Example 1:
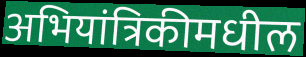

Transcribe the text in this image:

अभियांत्रिकीमधील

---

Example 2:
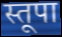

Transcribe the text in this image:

स्तूपा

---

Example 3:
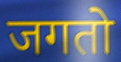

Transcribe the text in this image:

जगतो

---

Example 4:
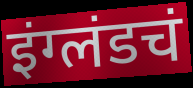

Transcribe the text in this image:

इंग्लंडचं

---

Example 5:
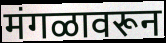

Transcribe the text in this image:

मंगळावरून